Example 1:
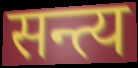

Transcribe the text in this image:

सन्त्य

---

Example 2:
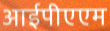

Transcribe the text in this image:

आईपीएएम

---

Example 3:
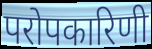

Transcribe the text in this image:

परोपकारिणी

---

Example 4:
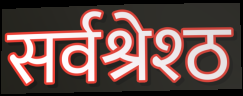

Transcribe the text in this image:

सर्वश्रेश्ठ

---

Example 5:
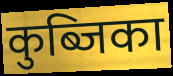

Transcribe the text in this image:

कुब्जिका